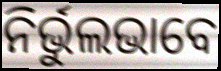
ନିର୍ଭୁଲଭାବେ